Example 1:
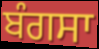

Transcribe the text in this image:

ਬੰਗਸਾ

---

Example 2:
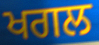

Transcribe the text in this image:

ਖਗਲ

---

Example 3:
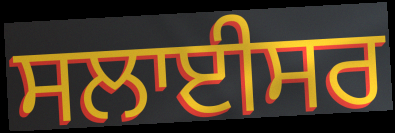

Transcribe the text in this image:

ਸਲਾਈਸਰ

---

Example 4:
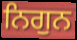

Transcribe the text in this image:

ਨਿਗੁਨ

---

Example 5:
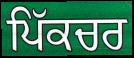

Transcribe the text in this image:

ਪਿੱਕਚਰ